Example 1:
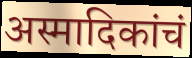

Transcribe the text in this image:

अस्मादिकांचं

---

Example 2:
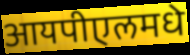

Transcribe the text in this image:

आयपीएलमधे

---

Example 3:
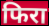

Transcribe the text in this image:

फिरा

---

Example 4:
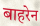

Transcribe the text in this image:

बाहरेन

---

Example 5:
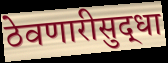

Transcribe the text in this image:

ठेवणारीसुद्धा